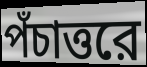
পঁচাত্তরে